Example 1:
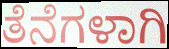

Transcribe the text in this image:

ತೆನೆಗಳಾಗಿ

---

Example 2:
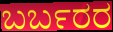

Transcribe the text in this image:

ಬರ್ಬರರ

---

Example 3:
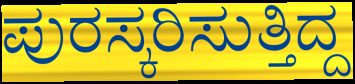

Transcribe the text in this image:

ಪುರಸ್ಕರಿಸುತ್ತಿದ್ದ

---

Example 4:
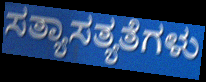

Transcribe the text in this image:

ಸತ್ಯಾಸತ್ಯತೆಗಳು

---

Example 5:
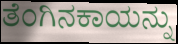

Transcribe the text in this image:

ತೆಂಗಿನಕಾಯನ್ನು